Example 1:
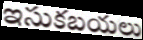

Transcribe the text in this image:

ఇసుకబయలు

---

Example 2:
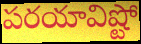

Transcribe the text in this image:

పరయావిష్టో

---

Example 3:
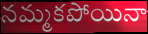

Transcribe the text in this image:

నమ్మకపోయినా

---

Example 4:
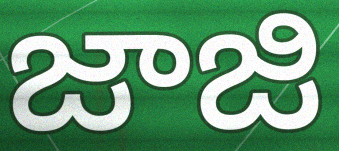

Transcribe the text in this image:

జాజి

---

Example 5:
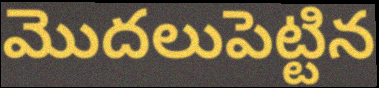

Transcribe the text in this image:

మొదలుపెట్టిన